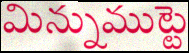
మిన్నుముట్టె